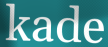
kade